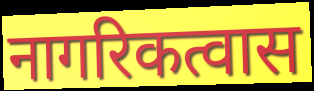
नागरिकत्वास